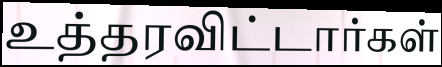
உத்தரவிட்டார்கள்